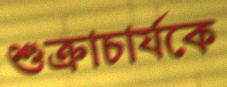
শুক্রাচার্যকে